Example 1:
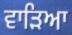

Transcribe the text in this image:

ਵਾੜਿਆ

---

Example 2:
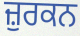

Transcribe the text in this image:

ਜ਼ੁਰਕਨ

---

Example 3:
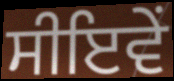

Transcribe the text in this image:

ਸੀਇਵੇਂ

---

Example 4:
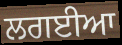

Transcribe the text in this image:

ਲਗਈਆ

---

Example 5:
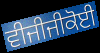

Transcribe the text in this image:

ਵੀਜੀਜੀਕੋਈ